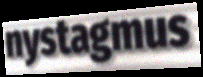
nystagmus